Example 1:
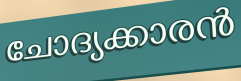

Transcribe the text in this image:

ചോദ്യക്കാരൻ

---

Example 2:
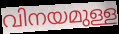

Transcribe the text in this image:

വിനയമുള്ള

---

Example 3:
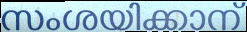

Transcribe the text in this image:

സംശയിക്കാന്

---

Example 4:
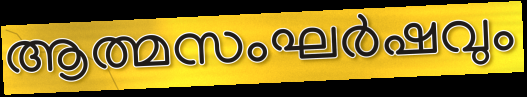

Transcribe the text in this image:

ആത്മസംഘർഷവും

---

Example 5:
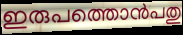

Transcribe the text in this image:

ഇരുപത്തൊൻപതു